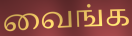
வைங்க